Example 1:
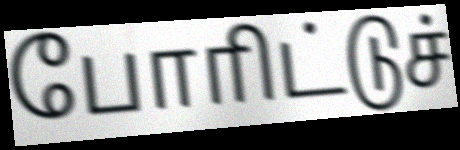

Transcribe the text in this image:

போரிட்டுச்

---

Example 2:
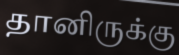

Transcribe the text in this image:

தானிருக்கு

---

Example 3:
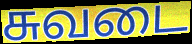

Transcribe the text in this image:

சுவடை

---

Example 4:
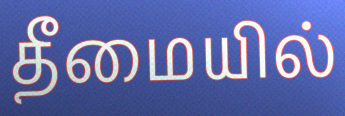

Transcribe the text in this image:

தீமையில்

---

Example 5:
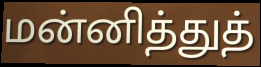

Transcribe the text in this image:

மன்னித்துத்